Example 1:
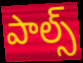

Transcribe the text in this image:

పాల్స్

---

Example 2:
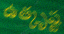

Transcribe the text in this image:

ఉత్కృష్ట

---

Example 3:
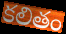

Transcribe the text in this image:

కలితం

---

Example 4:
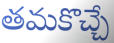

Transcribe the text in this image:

తమకొచ్చే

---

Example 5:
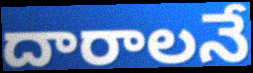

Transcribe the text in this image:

దారాలనే